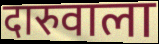
दारुवाला